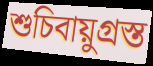
শুচিবায়ুগ্ৰস্ত